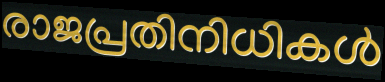
രാജപ്രതിനിധികൾ